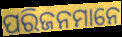
ପରିଜନମାନେ